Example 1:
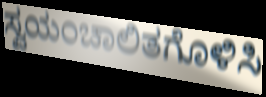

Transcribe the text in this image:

ಸ್ವಯಂಚಾಲಿತಗೊಳಿಸಿ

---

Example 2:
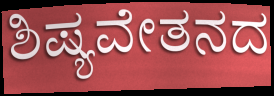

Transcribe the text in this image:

ಶಿಷ್ಯವೇತನದ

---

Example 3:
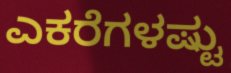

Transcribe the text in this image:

ಎಕರೆಗಳಷ್ಟು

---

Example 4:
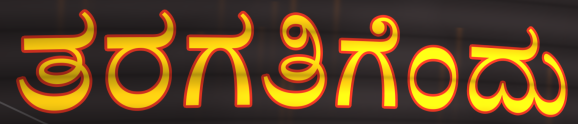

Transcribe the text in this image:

ತರಗತಿಗೆಂದು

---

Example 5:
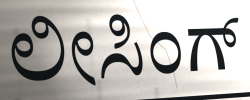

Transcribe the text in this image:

ಲೀಸಿಂಗ್